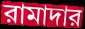
রামাদার